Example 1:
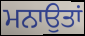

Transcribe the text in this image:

ਮਨਾਉਤਾਂ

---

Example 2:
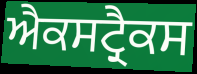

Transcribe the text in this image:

ਐਕਸਟ੍ਰੈਕਸ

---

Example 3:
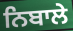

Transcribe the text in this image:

ਨਿਬਾਲੇ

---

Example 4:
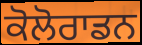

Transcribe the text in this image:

ਕੋਲੋਰਾਡਨ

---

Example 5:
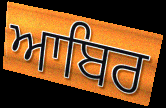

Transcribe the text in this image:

ਆਬਿਰ